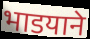
भाडयाने